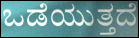
ಒಡೆಯುತ್ತದೆ